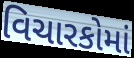
વિચારકોમાં